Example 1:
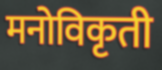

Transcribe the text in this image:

मनोविकृती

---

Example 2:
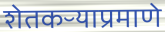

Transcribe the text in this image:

शेतकऱ्याप्रमाणे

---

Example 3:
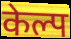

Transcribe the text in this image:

केल्प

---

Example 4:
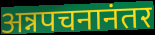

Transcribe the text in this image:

अन्नपचनानंतर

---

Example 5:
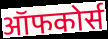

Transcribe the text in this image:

ऑफकोर्स